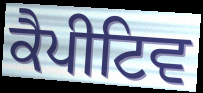
ਕੈਪੀਟਿਵ